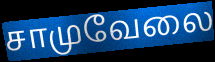
சாமுவேலை